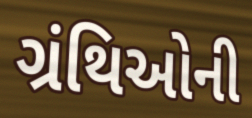
ગ્રંથિઓની